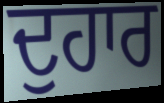
ਦੁਹਾਰ